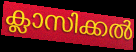
ക്ലാസിക്കൽ